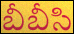
బీబీసి